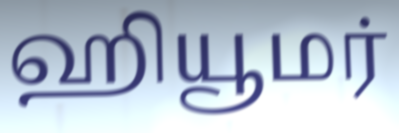
ஹியூமர்